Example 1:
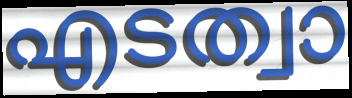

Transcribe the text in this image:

എടത്വാ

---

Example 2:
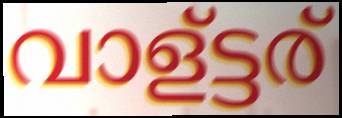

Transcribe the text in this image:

വാള്ട്ടര്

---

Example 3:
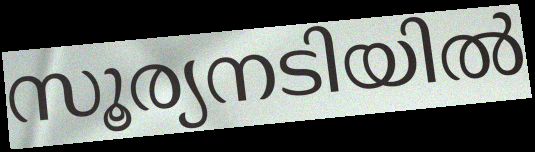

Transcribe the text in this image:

സൂര്യനടിയിൽ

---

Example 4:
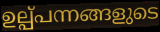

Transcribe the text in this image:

ഉല്പ്പന്നങ്ങളുടെ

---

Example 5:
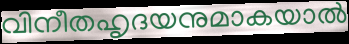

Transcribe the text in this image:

വിനീതഹൃദയനുമാകയാൽ